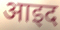
आइद